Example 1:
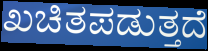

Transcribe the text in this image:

ಖಚಿತಪಡುತ್ತದೆ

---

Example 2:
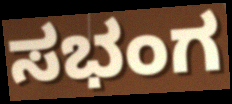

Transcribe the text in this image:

ಸಭಂಗ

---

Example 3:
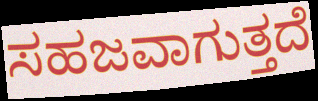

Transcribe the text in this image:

ಸಹಜವಾಗುತ್ತದೆ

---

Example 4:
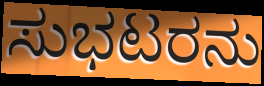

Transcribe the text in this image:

ಸುಭಟರನು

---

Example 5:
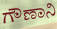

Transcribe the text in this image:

ಗೌಣಾನಿ